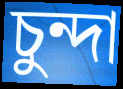
চুন্দা